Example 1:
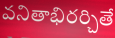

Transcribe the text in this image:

వనితాభిరర్చితే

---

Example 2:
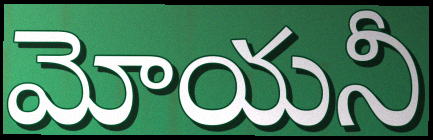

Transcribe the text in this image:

మోయనీ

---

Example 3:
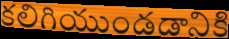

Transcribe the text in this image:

కలిగియుండడానికి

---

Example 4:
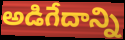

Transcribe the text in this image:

అడిగేదాన్ని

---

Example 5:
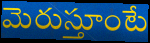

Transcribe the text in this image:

మెరుస్తూంటే